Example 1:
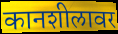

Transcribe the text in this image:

कानशीलावर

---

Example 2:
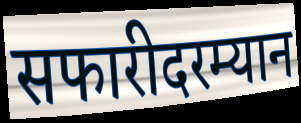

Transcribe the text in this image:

सफारीदरम्यान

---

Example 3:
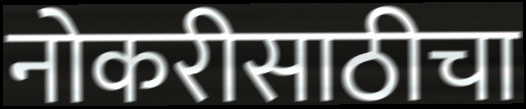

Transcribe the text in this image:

नोकरीसाठीचा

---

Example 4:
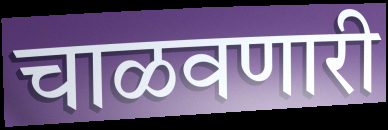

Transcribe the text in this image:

चाळवणारी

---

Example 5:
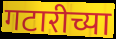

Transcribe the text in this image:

गटारीच्या